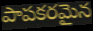
పాపకరమైన